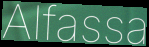
Alfassa